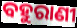
ବହୁରାଣୀ